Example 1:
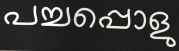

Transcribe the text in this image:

പച്ചപ്പൊളു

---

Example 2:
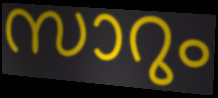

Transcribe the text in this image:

സാറും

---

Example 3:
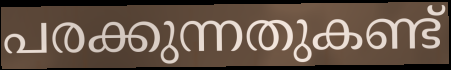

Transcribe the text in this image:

പരക്കുന്നതുകണ്ട്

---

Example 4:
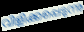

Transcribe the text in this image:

വിളിക്കപ്പെടുന്നു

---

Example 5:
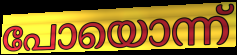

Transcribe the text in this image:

പോയൊന്ന്